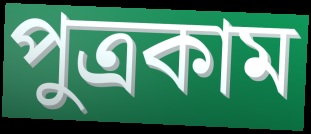
পুত্রকাম